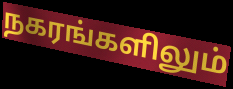
நகரங்களிலும்